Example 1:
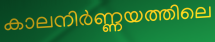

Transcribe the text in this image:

കാലനിർണ്ണയത്തിലെ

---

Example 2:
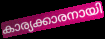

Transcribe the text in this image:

കാര്യക്കാരനായി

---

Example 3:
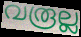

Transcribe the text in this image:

വരൂല്ല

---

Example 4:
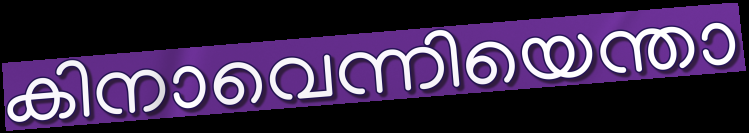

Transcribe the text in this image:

കിനാവെന്നിയെന്താ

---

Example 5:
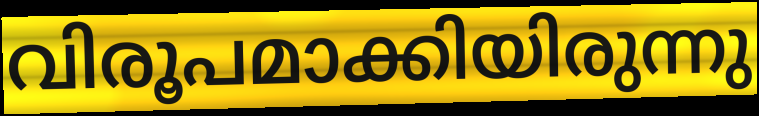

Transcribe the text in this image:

വിരൂപമാക്കിയിരുന്നു